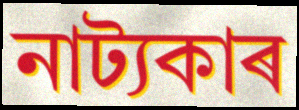
নাট্যকাৰ